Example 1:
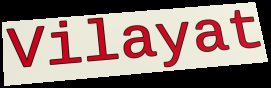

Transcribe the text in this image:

Vilayat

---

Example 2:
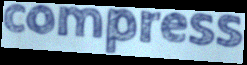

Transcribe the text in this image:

compress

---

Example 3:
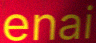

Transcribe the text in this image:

enai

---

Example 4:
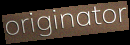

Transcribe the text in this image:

originator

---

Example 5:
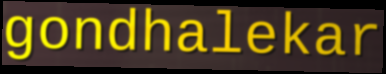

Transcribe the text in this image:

gondhalekar